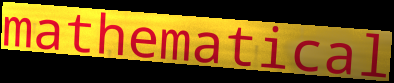
mathematical